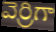
వెర్రిగా